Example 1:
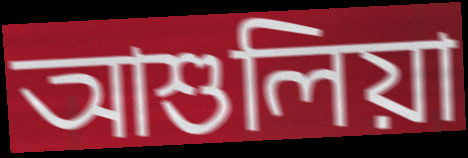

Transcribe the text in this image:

আশুলিয়া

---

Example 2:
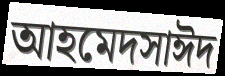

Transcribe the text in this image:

আহমেদসাঈদ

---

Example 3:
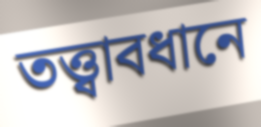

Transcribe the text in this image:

তত্ত্বাবধানে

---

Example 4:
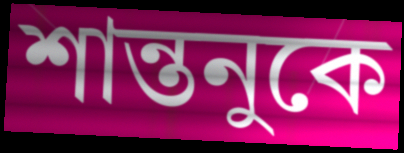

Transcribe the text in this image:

শান্তনুকে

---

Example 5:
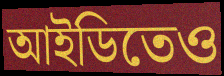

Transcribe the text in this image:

আইডিতেও